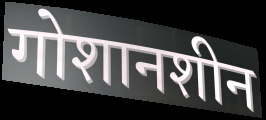
गोशानशीन